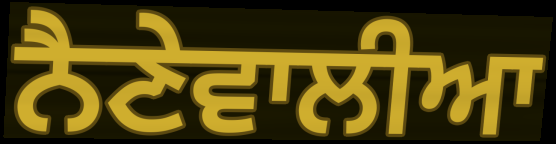
ਨੈਣੇਵਾਲੀਆ